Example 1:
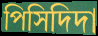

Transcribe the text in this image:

পিসিদিদা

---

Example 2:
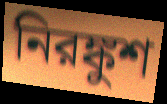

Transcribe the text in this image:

নিরঙ্কুশ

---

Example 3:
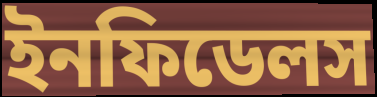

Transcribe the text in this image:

ইনফিডেলস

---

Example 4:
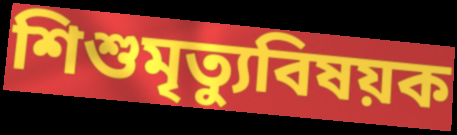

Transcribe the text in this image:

শিশুমৃত্যুবিষয়ক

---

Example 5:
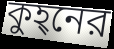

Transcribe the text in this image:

কুহ্‌নের